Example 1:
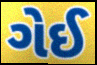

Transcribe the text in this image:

ગેઈ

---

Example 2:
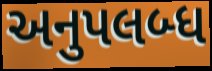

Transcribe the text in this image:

અનુપલબ્ધ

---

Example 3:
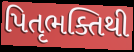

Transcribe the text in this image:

પિતૃભક્તિથી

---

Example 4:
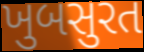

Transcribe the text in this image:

ખુબસુરત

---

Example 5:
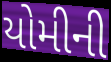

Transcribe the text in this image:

યોમીની